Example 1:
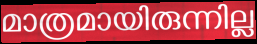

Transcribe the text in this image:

മാത്രമായിരുന്നില്ല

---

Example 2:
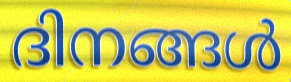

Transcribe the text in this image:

ദിനങ്ങൾ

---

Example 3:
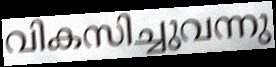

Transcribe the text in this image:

വികസിച്ചുവന്നു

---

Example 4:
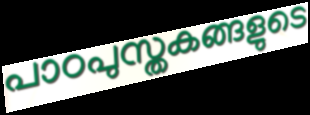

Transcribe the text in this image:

പാഠപുസ്തകങ്ങളുടെ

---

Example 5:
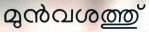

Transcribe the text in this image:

മുൻവശത്തു്